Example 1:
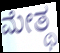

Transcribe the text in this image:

ಮೇತ್ಥ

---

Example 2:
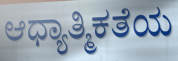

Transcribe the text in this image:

ಆಧ್ಯಾತ್ಮಿಕತೆಯ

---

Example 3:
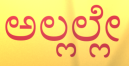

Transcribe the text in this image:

ಅಲ್ಲಲ್ಲೇ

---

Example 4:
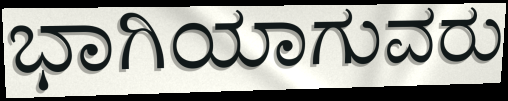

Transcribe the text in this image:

ಭಾಗಿಯಾಗುವರು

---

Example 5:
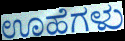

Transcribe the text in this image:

ಊಹೆಗಳು